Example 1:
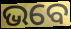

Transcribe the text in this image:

ଭବେ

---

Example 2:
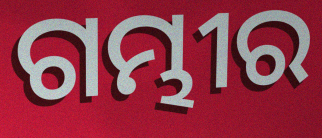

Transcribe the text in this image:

ଗମ୍ଭୀର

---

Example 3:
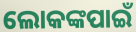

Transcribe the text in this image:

ଲୋକଙ୍କପାଇଁ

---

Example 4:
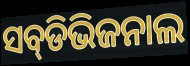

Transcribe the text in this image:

ସବ୍‌ଡିଭିଜନାଲ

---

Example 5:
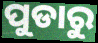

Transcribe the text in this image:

ପୁଡାରୁ